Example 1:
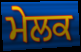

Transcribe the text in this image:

ਮੇਲਕ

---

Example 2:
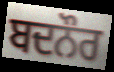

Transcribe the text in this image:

ਬਦਨੌਰ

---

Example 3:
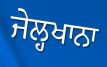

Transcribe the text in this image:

ਜੇਲ੍ਹਖਾਨਾ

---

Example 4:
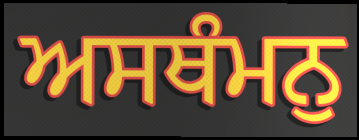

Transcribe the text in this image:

ਅਸਥੰਮਨੁ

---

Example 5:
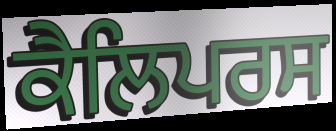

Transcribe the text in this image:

ਕੈਲਿਪਰਸ